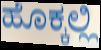
ಹೊಕ್ಕಲ್ಲಿ